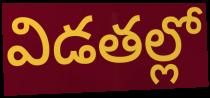
విడతల్లో